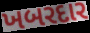
ખબરદાર